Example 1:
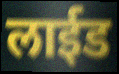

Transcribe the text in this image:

लाईड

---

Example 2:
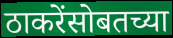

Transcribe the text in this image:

ठाकरेंसोबतच्या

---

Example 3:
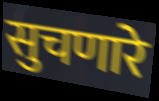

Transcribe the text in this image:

सुचणारे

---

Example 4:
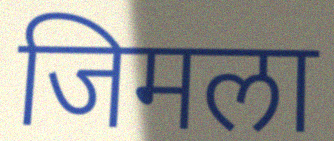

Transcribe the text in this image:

जिमला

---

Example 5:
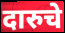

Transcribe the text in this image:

दारुचे